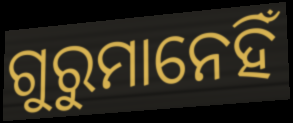
ଗୁରୁମାନେହିଁ